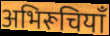
अभिरूचियाँ